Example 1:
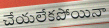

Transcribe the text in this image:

చేయలేకపోయినా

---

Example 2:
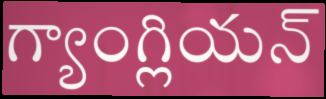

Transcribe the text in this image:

గ్యాంగ్లియన్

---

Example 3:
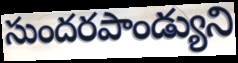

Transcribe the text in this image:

సుందరపాండ్యుని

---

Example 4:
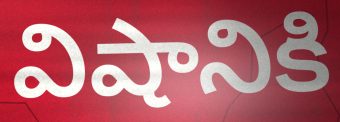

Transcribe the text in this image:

విషానికి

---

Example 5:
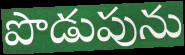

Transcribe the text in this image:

పొడుపును